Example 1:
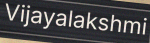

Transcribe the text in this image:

Vijayalakshmi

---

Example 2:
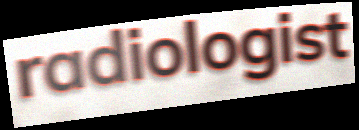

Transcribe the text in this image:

radiologist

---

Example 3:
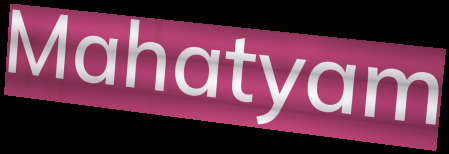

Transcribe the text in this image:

Mahatyam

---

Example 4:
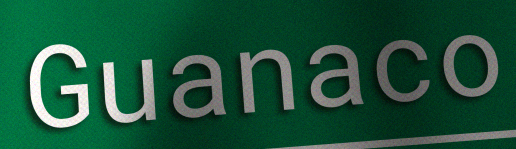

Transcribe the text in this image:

Guanaco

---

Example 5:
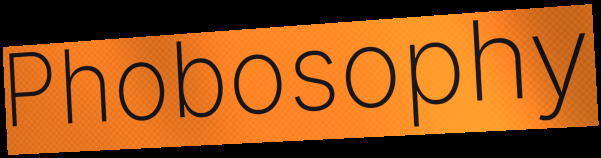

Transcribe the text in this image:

Phobosophy